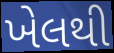
ખેલથી